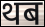
थब